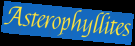
Asterophyllites